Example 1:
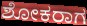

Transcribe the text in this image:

ಶೋಕರಾಗ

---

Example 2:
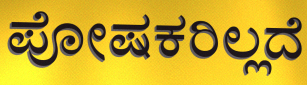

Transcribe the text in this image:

ಪೋಷಕರಿಲ್ಲದೆ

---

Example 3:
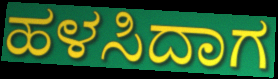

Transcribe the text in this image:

ಹಳಸಿದಾಗ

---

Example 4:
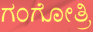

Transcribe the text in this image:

ಗಂಗೋತ್ರಿ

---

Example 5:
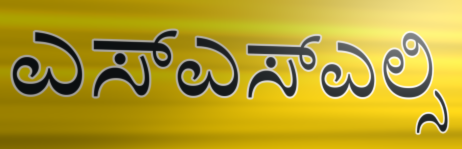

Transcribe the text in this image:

ಎಸ್ಎಸ್ಎಲ್ಸಿ